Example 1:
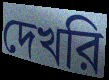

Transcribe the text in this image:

দেখরি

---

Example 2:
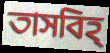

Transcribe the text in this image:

তাসবিহ্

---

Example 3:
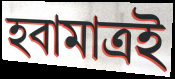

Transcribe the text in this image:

হবামাত্রই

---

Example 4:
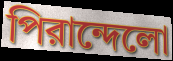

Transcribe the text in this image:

পিরান্দেলো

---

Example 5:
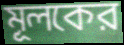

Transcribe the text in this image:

মূলকের